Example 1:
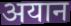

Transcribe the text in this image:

अयान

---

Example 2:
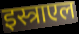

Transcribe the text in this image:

इस्त्राएल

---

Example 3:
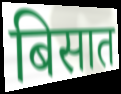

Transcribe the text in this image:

बिसात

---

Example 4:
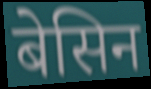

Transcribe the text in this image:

बेसिन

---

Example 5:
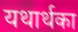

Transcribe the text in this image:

यथार्थका